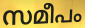
സമീപം